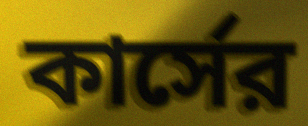
কার্সের